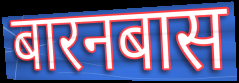
बारनबास